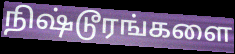
நிஷ்டூரங்களை